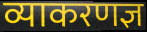
व्याकरणज्ञ